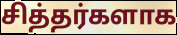
சித்தர்களாக